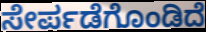
ಸೇರ್ಪಡೆಗೊಂಡಿದೆ